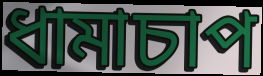
ধামাচাপ